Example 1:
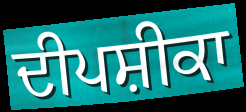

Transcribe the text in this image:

ਦੀਪਸ਼ੀਕਾ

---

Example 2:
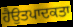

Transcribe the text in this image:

ਹੈਉਤਪਾਦਕਤਾ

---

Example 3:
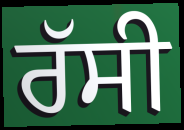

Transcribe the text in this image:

ਰੱਸੀ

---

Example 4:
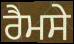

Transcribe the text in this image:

ਰੈਮਸੇ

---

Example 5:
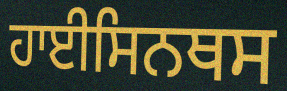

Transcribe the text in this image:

ਹਾਈਸਿਨਥਸ